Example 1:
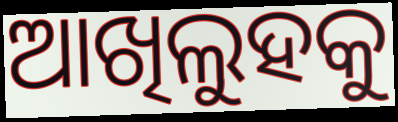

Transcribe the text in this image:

ଆଖିଲୁହକୁ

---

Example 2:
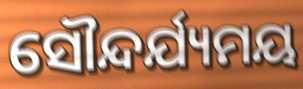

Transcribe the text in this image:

ସୌନ୍ଦର୍ଯ୍ୟମୟ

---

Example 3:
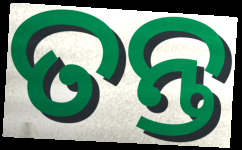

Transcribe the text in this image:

ତନ୍ତ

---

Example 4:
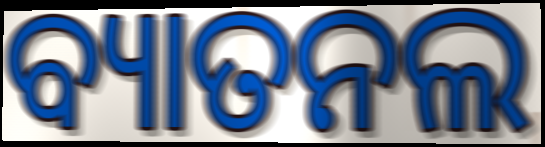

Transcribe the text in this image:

ବ୍ୟାତନଲ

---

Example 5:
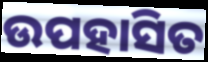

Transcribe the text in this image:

ଉପହାସିତ